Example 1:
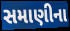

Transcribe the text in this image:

સમાણીના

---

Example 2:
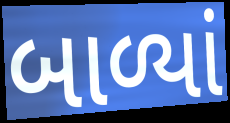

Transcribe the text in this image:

બાળ્યાં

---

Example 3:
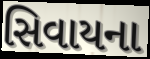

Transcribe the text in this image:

સિવાયના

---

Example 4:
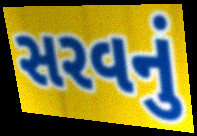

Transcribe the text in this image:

સરવનું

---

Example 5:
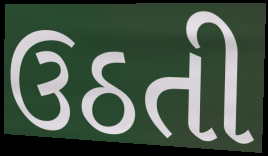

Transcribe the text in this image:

ઉઠતી